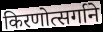
किरणोत्सर्गाने